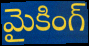
మైకింగ్